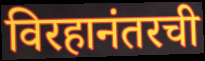
विरहानंतरची